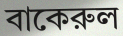
বাকেরুল